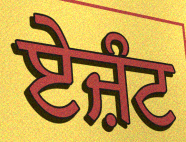
ਏਜ਼ੰਟ